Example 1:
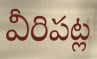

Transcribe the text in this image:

వీరిపట్ల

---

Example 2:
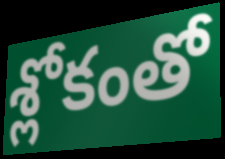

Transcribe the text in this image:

శ్లోకంతో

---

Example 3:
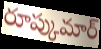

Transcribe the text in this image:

రూప్కుమార్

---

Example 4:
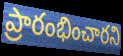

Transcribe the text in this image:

ప్రారంభించారని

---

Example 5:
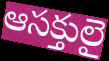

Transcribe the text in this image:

ఆసక్తులై